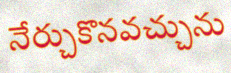
నేర్చుకొనవచ్చును